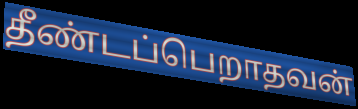
தீண்டப்பெறாதவன்